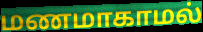
மணமாகாமல்